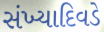
સંખ્યાદિવડે